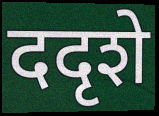
ददृशे